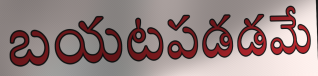
బయటపడడమే